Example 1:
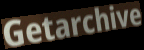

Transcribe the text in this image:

Getarchive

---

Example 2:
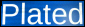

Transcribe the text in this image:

Plated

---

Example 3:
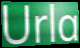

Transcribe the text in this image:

Urla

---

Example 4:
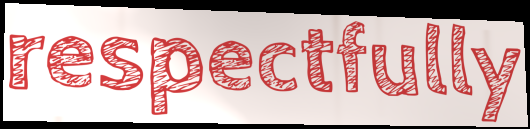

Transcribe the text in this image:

respectfully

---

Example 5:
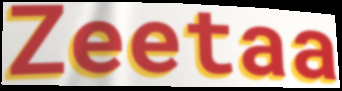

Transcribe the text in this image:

Zeetaa